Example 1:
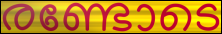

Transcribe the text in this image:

രണ്ടോടെ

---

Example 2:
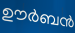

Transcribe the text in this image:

ഊർബൻ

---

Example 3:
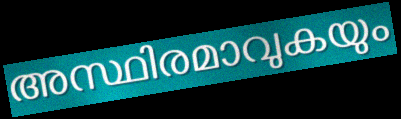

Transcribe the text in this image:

അസ്ഥിരമാവുകയും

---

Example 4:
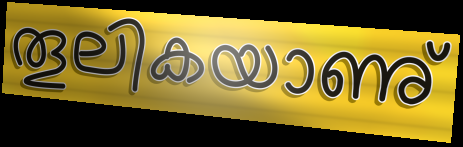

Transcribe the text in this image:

തൂലികയാണു്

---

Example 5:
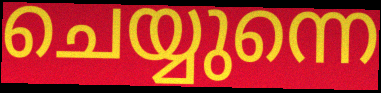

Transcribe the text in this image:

ചെയ്യുന്നെ